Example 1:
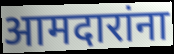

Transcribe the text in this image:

आमदारांना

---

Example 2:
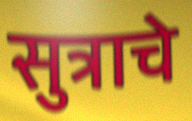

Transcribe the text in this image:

सुत्राचे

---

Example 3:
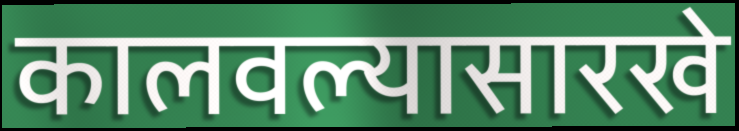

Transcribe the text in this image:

कालवल्यासारखे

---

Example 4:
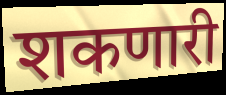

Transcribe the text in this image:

शकणारी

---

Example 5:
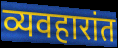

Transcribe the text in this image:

व्यवहारांत